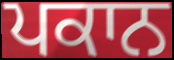
ਪਕਾਨ